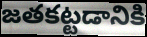
జతకట్టడానికి